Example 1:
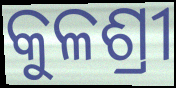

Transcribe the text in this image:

କୁଳଶ୍ରୀ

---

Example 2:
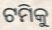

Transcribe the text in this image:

ଟମିକୁ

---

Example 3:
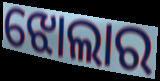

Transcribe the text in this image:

ଝୋଲାର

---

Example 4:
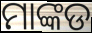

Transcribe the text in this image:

ମାଙ୍କଡ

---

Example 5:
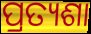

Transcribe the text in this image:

ପ୍ରତ୍ୟଶା